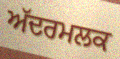
ਅੱਦਰਮਲਕ